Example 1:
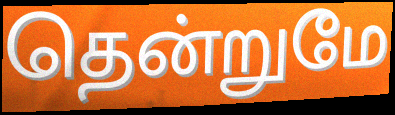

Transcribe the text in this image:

தென்றுமே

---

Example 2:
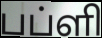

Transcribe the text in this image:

பப்ளி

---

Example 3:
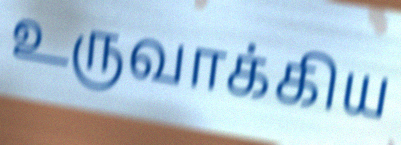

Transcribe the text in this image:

உருவாக்கிய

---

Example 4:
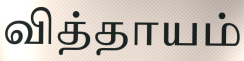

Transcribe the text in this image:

வித்தாயம்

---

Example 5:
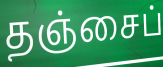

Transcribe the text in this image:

தஞ்சைப்